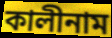
কালীনাম